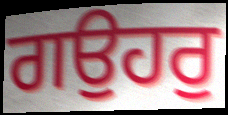
ਗਉਹਰੁ